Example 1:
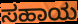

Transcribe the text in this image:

ಸಹಾಯ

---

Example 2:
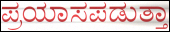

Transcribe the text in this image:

ಪ್ರಯಾಸಪಡುತ್ತಾ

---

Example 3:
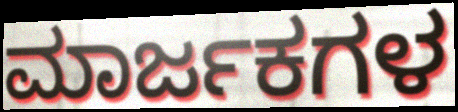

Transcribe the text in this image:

ಮಾರ್ಜಕಗಳ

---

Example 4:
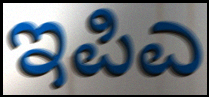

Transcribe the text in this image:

ಇಪಿಎ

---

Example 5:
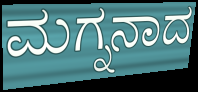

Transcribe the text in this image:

ಮಗ್ನನಾದ